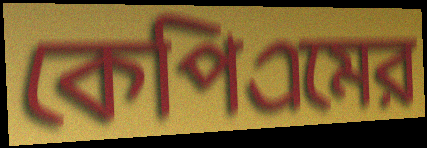
কেপিএমের